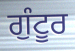
ਗੁੰਟੂਰ